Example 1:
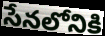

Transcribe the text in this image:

సేనలోనికి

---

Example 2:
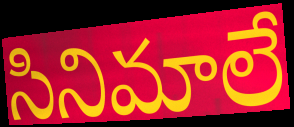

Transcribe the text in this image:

సినిమాలే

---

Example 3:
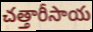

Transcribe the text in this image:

చత్తారీసాయ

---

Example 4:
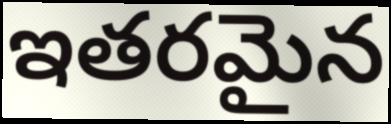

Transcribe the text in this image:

ఇతరమైన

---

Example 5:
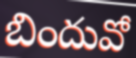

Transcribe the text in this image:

బిందువో